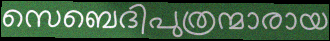
സെബെദിപുത്രന്മാരായ